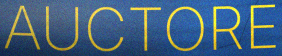
AUCTORE